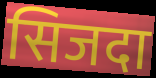
सिजदा